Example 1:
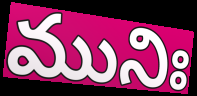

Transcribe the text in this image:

మునిః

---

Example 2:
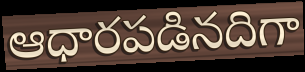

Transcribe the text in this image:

ఆధారపడినదిగా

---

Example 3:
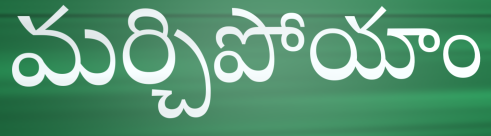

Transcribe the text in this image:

మర్చిపోయాం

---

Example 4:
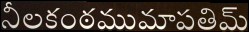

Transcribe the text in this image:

నీలకంఠముమాపతిమ్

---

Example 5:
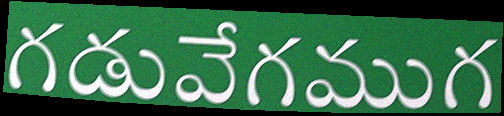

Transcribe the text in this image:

గడువేగముగ